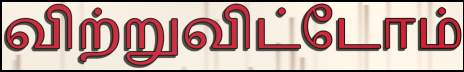
விற்றுவிட்டோம்